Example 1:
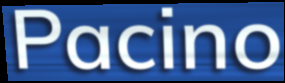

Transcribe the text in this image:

Pacino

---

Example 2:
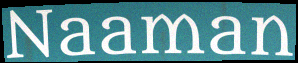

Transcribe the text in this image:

Naaman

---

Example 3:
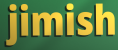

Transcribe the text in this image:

jimish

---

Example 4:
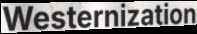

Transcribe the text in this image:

Westernization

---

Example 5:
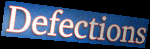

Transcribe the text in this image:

Defections